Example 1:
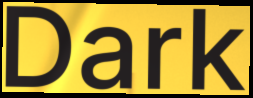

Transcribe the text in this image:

Dark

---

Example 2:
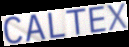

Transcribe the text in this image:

CALTEX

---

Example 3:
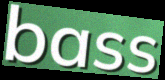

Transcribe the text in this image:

bass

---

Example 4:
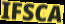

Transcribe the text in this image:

IFSCA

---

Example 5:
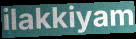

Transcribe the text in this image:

ilakkiyam